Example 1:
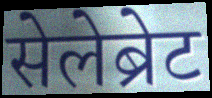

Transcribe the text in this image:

सेलेब्रेट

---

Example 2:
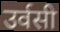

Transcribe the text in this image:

उर्वसी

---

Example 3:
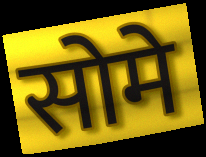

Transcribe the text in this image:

सोमे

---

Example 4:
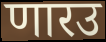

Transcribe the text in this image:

णारउ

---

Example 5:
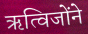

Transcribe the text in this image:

ऋत्विजोंने